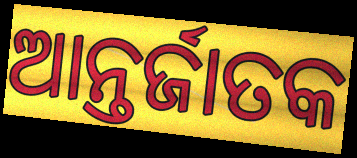
ଆନ୍ତର୍ଜାତକ